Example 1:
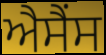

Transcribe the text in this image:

ਐਸੈਂਸ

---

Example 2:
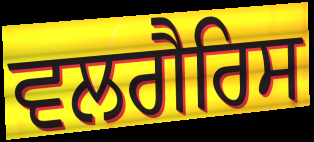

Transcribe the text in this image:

ਵਲਗੈਰਿਸ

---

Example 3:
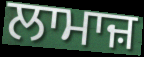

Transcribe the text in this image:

ਲਾਮਾਜ਼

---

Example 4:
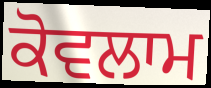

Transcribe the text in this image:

ਕੋਵਲਾਮ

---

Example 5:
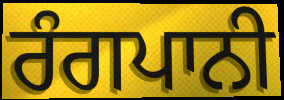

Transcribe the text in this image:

ਰੰਗਪਾਨੀ